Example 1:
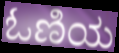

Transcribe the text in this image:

ಓಣಿಯ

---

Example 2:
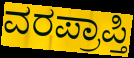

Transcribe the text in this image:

ವರಪ್ರಾಪ್ತಿ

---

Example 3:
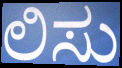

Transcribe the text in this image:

ಲಿಸು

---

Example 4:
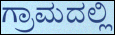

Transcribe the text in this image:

ಗ್ರಾಮದಲ್ಲಿ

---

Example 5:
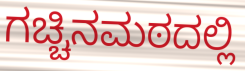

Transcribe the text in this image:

ಗಚ್ಚಿನಮಠದಲ್ಲಿ